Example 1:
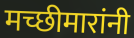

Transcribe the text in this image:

मच्छीमारांनी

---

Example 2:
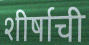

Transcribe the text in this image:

शीर्षाची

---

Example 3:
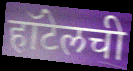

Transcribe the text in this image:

हॉटेलची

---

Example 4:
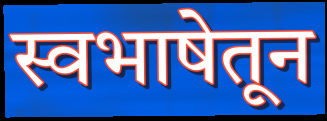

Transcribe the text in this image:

स्वभाषेतून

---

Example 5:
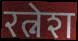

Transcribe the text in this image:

रत्नेश